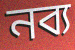
নব্য